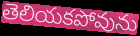
తెలియకపోవును